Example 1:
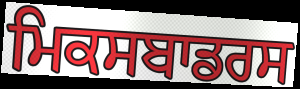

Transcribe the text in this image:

ਮਿਕਸਬਾਡਰਸ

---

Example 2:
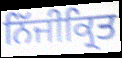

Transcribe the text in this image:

ਨਿੱਜੀਕ੍ਰਿਤ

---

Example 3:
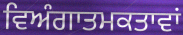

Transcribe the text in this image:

ਵਿਅੰਗਾਤਮਕਤਾਵਾਂ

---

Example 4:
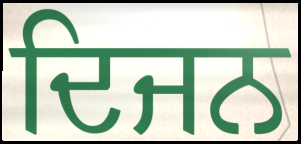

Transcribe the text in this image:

ਦਿਜਨ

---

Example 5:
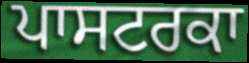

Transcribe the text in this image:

ਪਾਸਟਰਕਾ